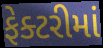
ફેક્ટરીમાં